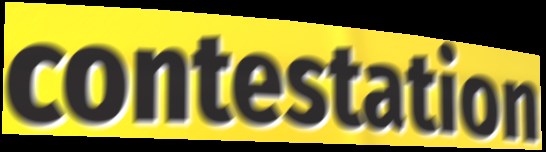
contestation